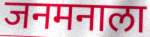
जनमनाला